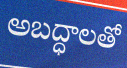
అబద్ధాలతో